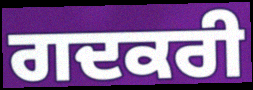
ਗਦਕਰੀ